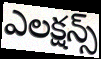
ఎలక్షన్స్